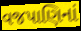
વજપાણિનાં